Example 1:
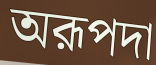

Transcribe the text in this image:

অরূপদা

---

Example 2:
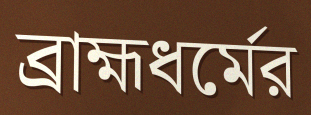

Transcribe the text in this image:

ব্রাহ্মধর্মের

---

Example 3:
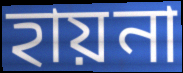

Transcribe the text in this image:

হায়না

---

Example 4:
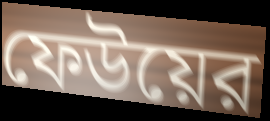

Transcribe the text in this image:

ফেউয়ের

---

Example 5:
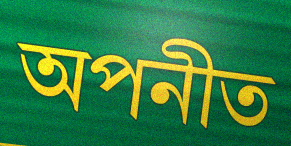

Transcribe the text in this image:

অপনীত